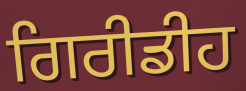
ਗਿਰੀਡੀਹ